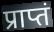
प्राप्तं